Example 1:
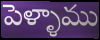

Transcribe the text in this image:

పెళ్ళాము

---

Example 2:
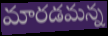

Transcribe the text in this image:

మారడమన్న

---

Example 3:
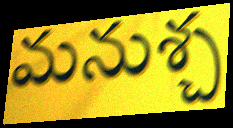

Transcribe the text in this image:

మనుశ్చ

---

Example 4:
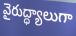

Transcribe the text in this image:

వైరుద్ధ్యాలుగా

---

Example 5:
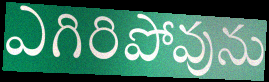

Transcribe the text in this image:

ఎగిరిపోవును